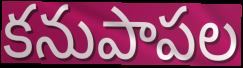
కనుపాపల